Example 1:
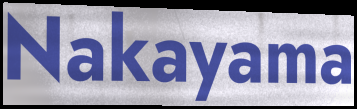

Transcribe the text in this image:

Nakayama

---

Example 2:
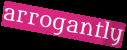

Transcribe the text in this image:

arrogantly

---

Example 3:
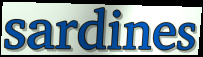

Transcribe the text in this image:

sardines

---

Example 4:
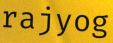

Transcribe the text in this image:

rajyog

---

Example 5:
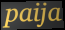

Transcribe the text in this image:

paija